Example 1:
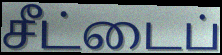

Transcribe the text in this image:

சீட்டைப்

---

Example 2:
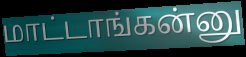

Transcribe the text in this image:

மாட்டாங்கன்னு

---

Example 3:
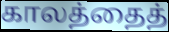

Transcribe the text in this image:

காலத்தைத்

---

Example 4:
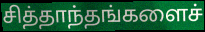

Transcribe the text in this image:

சித்தாந்தங்களைச்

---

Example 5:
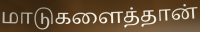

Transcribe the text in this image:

மாடுகளைத்தான்